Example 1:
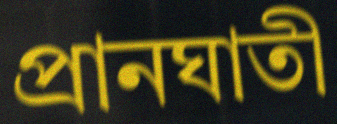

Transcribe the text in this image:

প্রানঘাতী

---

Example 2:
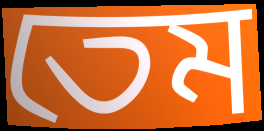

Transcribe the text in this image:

তেম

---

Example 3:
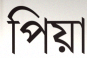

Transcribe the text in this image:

পিয়া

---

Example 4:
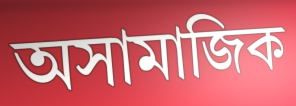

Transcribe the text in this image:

অসামাজিক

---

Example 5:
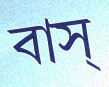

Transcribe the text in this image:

বাস্